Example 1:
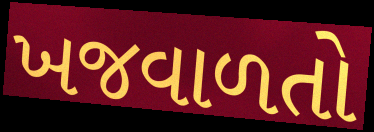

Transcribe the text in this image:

ખજવાળતો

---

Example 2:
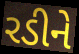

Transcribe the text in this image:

રડીને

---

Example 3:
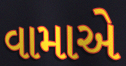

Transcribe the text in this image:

વામાએ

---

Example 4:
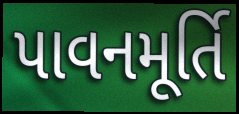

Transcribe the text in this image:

પાવનમૂર્તિ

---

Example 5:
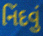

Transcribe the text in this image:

નિંદવું